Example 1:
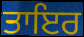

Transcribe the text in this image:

ਤਾਇਰ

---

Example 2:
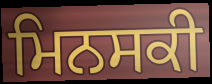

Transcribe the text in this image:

ਮਿਨਸਕੀ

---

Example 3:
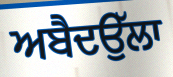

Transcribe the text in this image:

ਅਬੈਦਉੱਲਾ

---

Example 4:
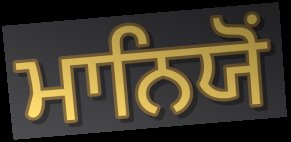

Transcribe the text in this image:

ਮਾਨਿਯੋਂ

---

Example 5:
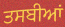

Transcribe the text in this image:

ਤਸਬੀਆਂ